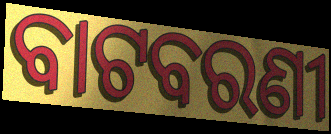
ବାଟବରଣୀ